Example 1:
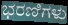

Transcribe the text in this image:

ಭರಣಿಗಳು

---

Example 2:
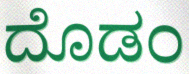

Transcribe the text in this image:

ದೊಡಂ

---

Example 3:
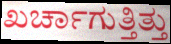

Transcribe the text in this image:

ಖರ್ಚಾಗುತ್ತಿತ್ತು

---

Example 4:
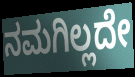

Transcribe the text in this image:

ನಮಗಿಲ್ಲದೇ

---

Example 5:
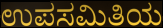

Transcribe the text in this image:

ಉಪಸಮಿತಿಯ